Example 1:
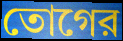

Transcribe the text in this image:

তোগের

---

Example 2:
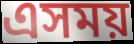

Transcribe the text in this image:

এসময়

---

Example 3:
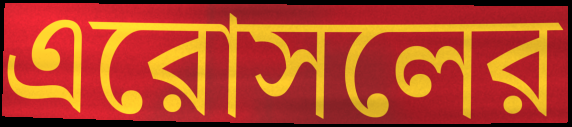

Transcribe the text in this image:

এরোসলের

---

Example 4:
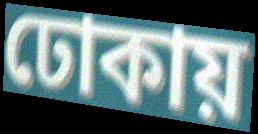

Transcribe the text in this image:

ঢোকায়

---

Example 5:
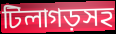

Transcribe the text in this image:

টিলাগড়সহ